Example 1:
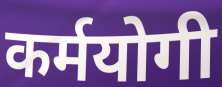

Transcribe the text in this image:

कर्मयोगी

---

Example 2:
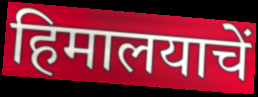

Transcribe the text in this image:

हिमालयाचें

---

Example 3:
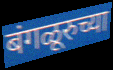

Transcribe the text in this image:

बंगळूरुच्या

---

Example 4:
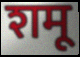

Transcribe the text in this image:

शमू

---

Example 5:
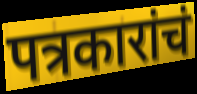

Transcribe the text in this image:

पत्रकारांचं